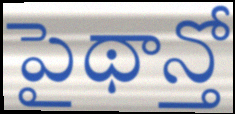
పైథాన్తో